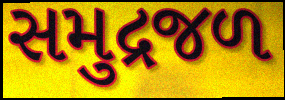
સમુદ્રજળ